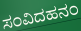
ಸಂವಿದಹನಂ